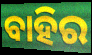
ବାହିର